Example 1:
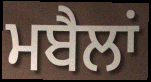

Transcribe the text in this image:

ਮਬੈਲਾਂ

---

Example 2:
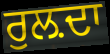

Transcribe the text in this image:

ਰੁਲ਼ਦਾ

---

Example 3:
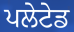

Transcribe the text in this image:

ਪਲੇਟੇਡ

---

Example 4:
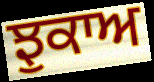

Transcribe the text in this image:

ਝੁਕਾਅ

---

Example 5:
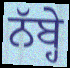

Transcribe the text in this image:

ਨੱਬ੍ਹੇ